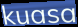
kuasa